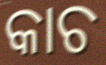
କାଚ